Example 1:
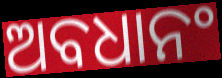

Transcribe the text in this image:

ଅବଧାନଂ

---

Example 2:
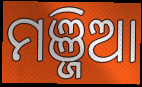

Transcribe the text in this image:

ମଞ୍ଜିଆ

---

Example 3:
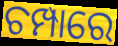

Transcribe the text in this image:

ଚମ୍ପାରେ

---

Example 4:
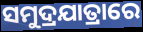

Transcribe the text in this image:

ସମୁଦ୍ରଯାତ୍ରାରେ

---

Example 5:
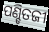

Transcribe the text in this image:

ପଣ୍ଡିତଜୀ